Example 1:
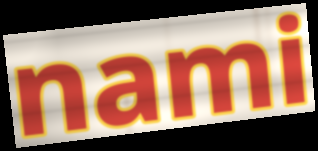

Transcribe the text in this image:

nami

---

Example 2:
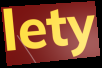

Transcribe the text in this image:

lety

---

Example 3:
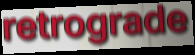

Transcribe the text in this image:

retrograde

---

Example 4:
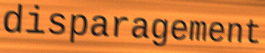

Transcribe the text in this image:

disparagement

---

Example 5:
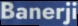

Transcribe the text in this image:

Banerji